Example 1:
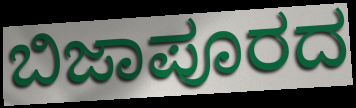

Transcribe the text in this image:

ಬಿಜಾಪೂರದ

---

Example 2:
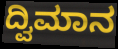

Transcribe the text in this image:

ದ್ವಿಮಾನ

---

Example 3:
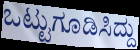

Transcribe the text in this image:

ಒಟ್ಟುಗೂಡಿಸಿದ್ದು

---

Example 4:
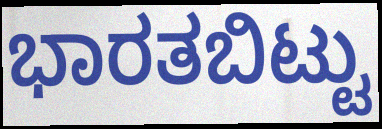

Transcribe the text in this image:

ಭಾರತಬಿಟ್ಟು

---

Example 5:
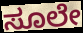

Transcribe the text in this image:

ಸೂಲೇ